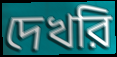
দেখরি